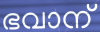
ഭവാന്